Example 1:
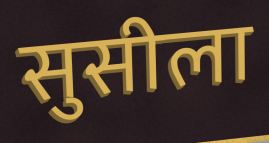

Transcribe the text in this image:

सुसीला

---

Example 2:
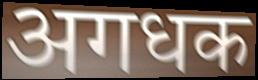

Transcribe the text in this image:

अगधक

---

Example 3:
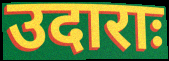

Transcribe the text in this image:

उदाराः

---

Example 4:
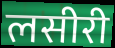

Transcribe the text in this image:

लसीरी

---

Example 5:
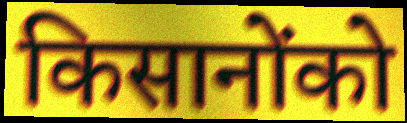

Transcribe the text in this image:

किसानोंको